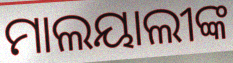
ମାଲୟାଲୀଙ୍କ